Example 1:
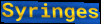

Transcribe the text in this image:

Syringes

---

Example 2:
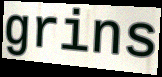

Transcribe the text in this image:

grins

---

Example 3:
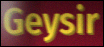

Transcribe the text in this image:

Geysir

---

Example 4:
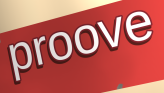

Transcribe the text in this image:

proove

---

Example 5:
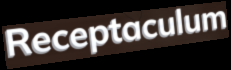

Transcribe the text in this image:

Receptaculum